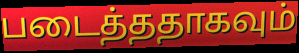
படைத்ததாகவும்